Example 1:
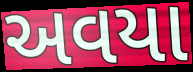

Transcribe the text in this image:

અવયા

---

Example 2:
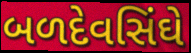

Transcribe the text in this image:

બળદેવસિંઘે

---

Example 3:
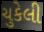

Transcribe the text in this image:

ચુકેલી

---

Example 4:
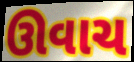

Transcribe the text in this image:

ઊવાચ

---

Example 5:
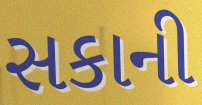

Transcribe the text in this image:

સકાની